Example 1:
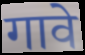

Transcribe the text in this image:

गावे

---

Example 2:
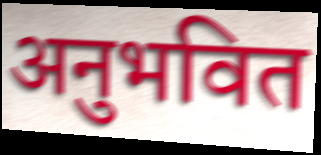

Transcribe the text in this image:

अनुभवित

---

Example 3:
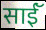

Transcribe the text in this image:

साईॅ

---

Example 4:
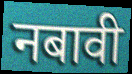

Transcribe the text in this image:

नबावी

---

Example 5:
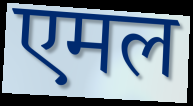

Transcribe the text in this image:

एमल